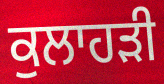
ਕੁਲਾਹੜੀ